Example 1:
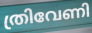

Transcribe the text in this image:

ത്രിവേണി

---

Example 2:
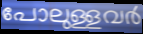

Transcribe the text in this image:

പോലുള്ളവർ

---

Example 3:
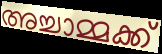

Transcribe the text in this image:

അച്ചാമ്മക്ക്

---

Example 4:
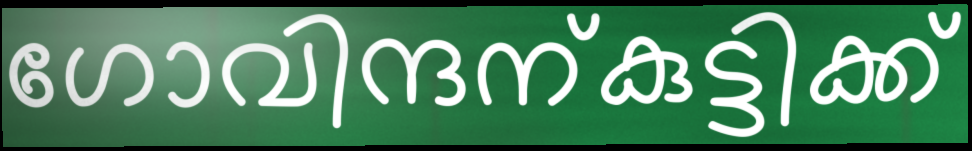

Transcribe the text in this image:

ഗോവിന്ദന്കുട്ടിക്ക്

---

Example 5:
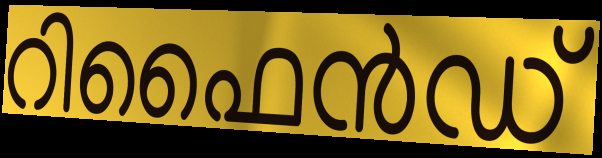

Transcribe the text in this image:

റിഫൈൻഡ്